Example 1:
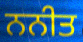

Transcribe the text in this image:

ਨਨੀਤ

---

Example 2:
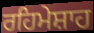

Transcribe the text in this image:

ਰਹਿਮੇਸ਼ਾਹ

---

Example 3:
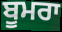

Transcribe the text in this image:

ਬੂਮਰਾ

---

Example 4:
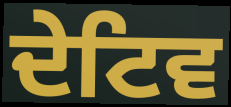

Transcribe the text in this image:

ਦੇਟਿਵ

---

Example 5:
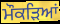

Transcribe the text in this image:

ਮੌਕੜਿਆਂ